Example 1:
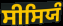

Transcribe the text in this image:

ਸੀਸਿਯੰ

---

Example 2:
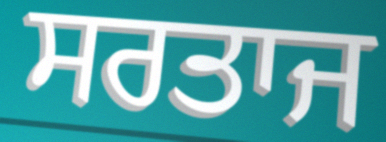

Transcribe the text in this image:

ਸਰਤਾਜ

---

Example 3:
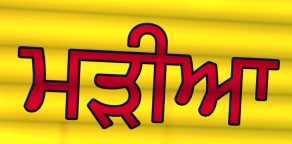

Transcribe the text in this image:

ਮੜੀਆ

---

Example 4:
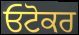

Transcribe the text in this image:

ਓਟੋਕਰ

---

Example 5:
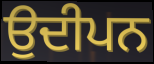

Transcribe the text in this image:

ਉਦੀਪਨ